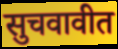
सुचवावीत